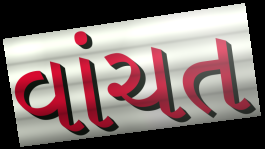
વાંચત